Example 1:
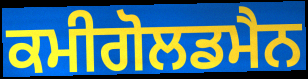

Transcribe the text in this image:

ਕਮੀਗੋਲਡਮੈਨ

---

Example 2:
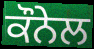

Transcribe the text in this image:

ਕੌਨੇਲ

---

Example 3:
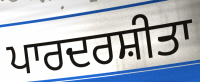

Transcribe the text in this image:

ਪਾਰਦਰਸ਼ੀਤਾ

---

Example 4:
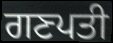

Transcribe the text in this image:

ਗਣਪਤੀ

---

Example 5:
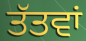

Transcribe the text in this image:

ਤੱਤਵਾਂ